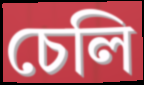
চেলি